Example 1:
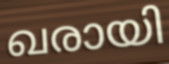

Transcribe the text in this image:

ഖരായി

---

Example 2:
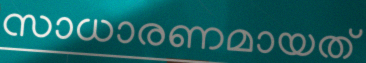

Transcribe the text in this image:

സാധാരണമായത്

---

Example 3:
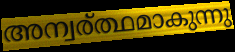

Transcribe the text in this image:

അന്വര്ത്ഥമാകുന്നു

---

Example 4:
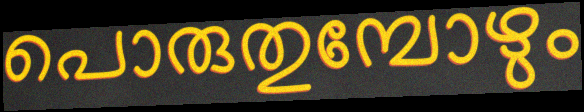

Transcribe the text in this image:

പൊരുതുമ്പോഴും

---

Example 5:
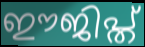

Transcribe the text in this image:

ഈജിപ്ത്